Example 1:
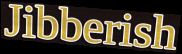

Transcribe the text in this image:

Jibberish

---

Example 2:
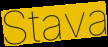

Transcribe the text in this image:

Stava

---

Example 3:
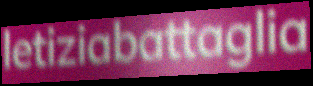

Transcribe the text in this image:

letiziabattaglia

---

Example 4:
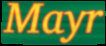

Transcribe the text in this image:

Mayr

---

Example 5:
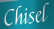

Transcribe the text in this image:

Chisel